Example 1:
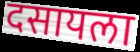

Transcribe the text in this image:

दसायला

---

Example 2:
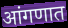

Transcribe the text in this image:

आंगणात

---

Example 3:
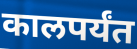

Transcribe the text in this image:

कालपर्यंत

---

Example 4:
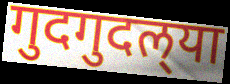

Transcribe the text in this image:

गुदगुदल्या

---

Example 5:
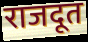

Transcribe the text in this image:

राजदूत